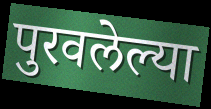
पुरवलेल्या